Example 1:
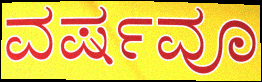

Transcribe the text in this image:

ವರ್ಷವೂ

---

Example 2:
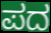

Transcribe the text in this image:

ಪದ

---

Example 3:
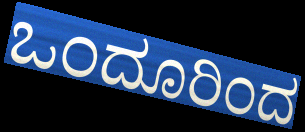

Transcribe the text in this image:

ಒಂದೂರಿಂದ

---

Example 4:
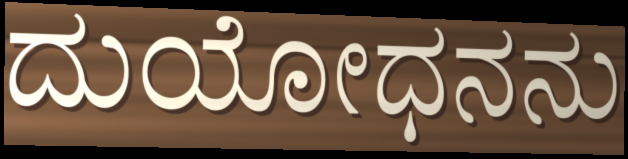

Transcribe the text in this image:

ದುಯೋಧನನು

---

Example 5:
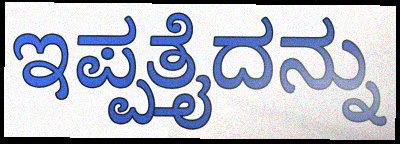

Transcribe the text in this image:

ಇಪ್ಪತ್ತೈದನ್ನು